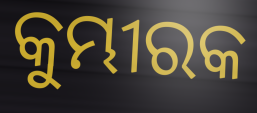
କୁମ୍ଭୀରକ